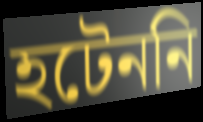
হটেননি